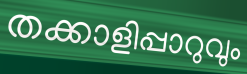
തക്കാളിപ്പാറുവും